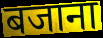
बजाना